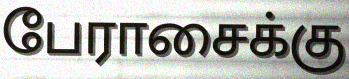
பேராசைக்கு